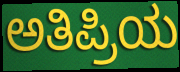
ಅತಿಪ್ರಿಯ